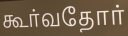
கூர்வதோர்